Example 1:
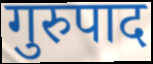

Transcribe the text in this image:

गुरुपाद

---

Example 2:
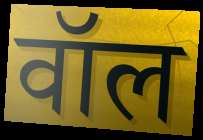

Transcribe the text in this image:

वॉल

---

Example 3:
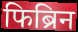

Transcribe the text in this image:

फिब्रिन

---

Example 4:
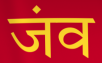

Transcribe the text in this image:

जंव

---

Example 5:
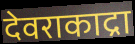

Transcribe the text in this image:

देवराकाद्रा